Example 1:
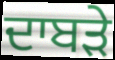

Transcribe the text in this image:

ਦਾਬੜੇ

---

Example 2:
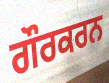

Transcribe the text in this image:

ਗੌਰਕਰਨ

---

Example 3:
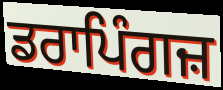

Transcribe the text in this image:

ਡਰਾਪਿੰਗਜ਼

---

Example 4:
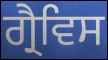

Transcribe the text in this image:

ਗ੍ਰੈਵਿਸ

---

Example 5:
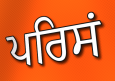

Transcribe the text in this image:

ਪਰਿਸਂ